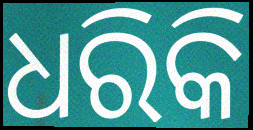
ଧରିକି